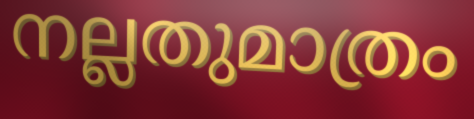
നല്ലതുമാത്രം